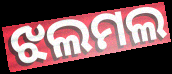
ଝଲମଲ